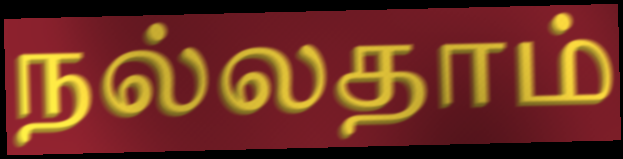
நல்லதாம்